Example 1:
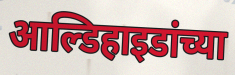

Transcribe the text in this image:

आल्डिहाइडांच्या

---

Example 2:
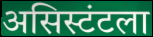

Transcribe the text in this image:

असिस्टंटला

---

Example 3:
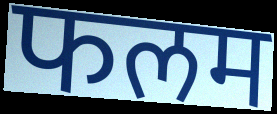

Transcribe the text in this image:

फलम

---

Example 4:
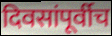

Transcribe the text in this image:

दिवसांपूर्वीच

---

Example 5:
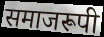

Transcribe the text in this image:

समाजरूपी